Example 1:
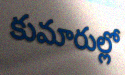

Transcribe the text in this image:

కుమారుల్లో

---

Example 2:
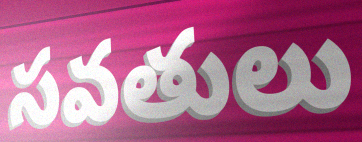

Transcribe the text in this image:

సవతులు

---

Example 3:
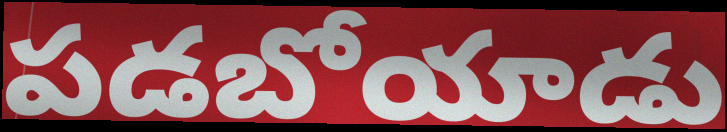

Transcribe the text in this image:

పడబోయాడు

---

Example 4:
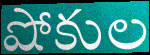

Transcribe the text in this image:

షోకుల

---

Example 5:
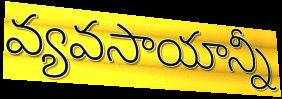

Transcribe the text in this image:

వ్యవసాయాన్నీ